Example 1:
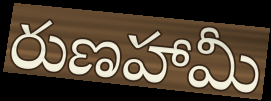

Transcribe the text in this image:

రుణహామీ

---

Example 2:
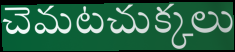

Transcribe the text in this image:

చెమటచుక్కలు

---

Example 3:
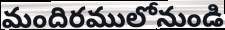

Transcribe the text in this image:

మందిరములోనుండి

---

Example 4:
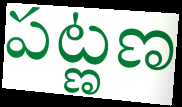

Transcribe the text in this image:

పట్ణణ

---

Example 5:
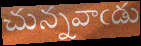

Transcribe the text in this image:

చున్నవాఁడు